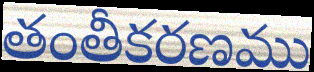
తంతీకరణము